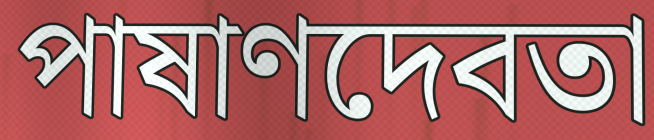
পাষাণদেবতা